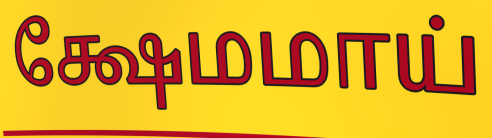
க்ஷேமமாய்